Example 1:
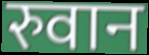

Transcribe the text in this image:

रुवान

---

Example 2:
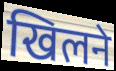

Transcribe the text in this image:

खिलने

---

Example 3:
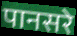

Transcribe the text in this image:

पानसरे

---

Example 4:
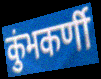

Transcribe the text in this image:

कुंभकर्णी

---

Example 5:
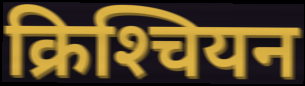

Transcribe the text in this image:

क्रिश्‍चियन